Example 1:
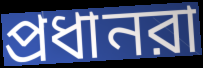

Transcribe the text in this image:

প্রধানরা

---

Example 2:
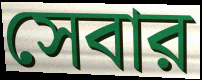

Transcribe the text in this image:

সেবার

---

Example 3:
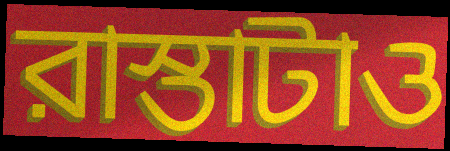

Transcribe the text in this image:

রাস্তাটাও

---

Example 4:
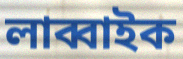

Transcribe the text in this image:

লাব্বাইক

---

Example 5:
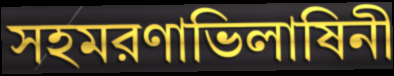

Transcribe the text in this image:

সহমরণাভিলাষিনী